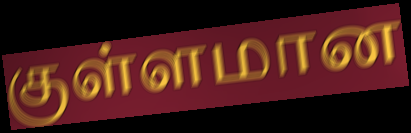
குள்ளமான